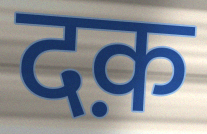
दक़